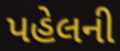
પહેલની